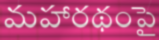
మహారథంపై